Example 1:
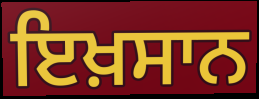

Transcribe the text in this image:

ਇਖ਼ਸਾਨ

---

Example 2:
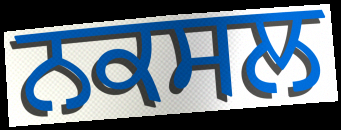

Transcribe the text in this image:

ਨਕਸਲ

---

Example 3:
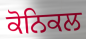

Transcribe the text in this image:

ਕੋਨਿਕਲ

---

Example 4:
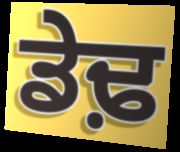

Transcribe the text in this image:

ਡੇਢ਼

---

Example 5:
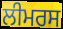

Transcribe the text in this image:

ਲੀਮਰਸ